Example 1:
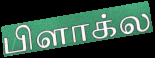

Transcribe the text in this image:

பிளாக்ல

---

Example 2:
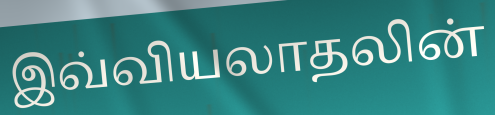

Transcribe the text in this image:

இவ்வியலாதலின்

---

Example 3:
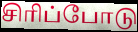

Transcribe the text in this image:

சிரிப்போடு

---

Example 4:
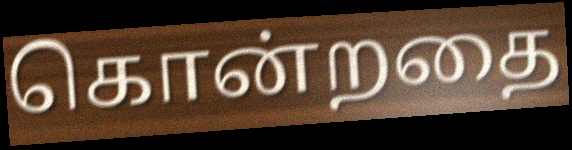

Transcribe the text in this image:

கொன்றதை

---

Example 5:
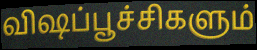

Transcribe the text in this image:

விஷப்பூச்சிகளும்